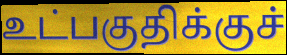
உட்பகுதிக்குச்